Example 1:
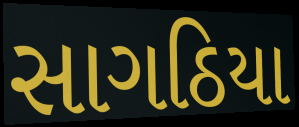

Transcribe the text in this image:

સાગઠિયા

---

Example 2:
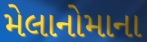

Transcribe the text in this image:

મેલાનોમાના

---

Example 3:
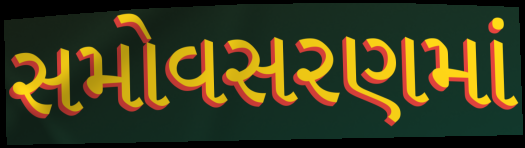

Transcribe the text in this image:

સમોવસરણમાં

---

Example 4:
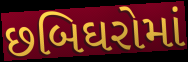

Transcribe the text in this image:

છબિઘરોમાં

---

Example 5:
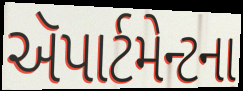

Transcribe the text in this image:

ઍપાર્ટમેન્ટના